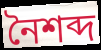
নৈশব্দ